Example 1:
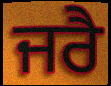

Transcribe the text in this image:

ਜਰੈ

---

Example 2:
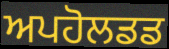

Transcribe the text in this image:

ਅਪਹੋਲਡਡ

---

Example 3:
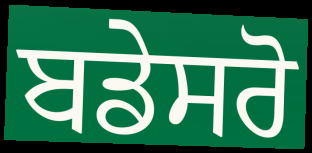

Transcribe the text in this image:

ਬਡੇਸਰੋ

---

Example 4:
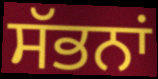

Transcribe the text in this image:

ਸੱਭਨਾਂ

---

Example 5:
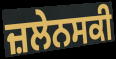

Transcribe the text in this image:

ਜ਼ਲੇਨਸਕੀ